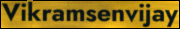
Vikramsenvijay